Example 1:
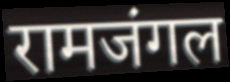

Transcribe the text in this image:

रामजंगल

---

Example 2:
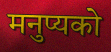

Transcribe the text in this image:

मनुप्यको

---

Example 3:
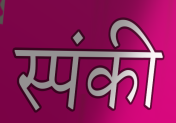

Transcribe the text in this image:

स्पंकी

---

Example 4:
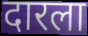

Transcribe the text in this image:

दारला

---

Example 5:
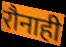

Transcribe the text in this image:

रौनाही